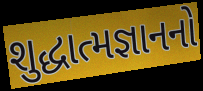
શુદ્ધાત્મજ્ઞાનનો